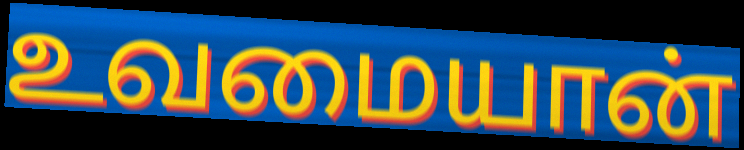
உவமையான்